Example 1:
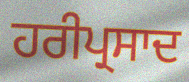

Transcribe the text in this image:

ਹਰੀਪ੍ਰਸਾਦ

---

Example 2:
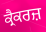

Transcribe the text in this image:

ਕ੍ਰੈਕਰਜ਼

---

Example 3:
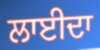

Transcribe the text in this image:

ਲਾਈਦਾ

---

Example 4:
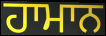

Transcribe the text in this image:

ਹਾਮਾਨ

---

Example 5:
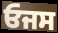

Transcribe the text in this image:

ਓਜਸ